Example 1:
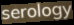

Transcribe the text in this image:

serology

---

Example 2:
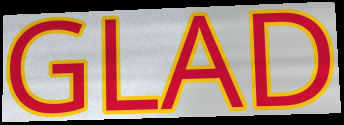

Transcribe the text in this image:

GLAD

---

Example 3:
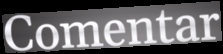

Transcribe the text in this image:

Comentar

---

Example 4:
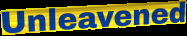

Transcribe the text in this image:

Unleavened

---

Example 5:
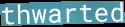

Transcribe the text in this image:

thwarted